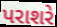
પરાશરે